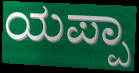
ಯಪ್ಪಾ